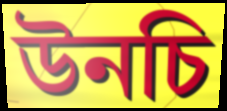
উনচি